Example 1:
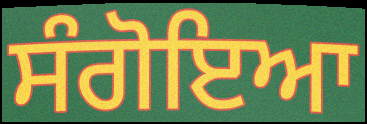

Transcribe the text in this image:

ਸੰਗੋਇਆ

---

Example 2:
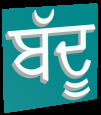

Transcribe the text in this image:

ਬੱਦੂ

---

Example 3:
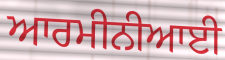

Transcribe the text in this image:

ਆਰਮੀਨੀਆਈ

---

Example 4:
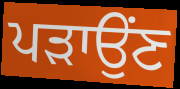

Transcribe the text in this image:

ਪੜਾਉਂਣ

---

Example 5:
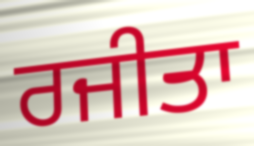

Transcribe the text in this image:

ਰਜੀਤਾ